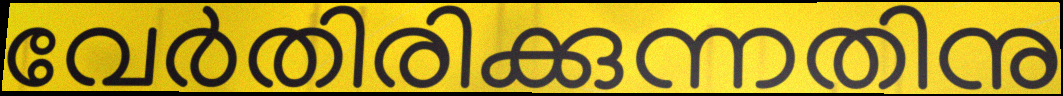
വേർതിരിക്കുന്നതിനു